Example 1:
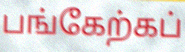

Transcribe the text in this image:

பங்கேற்கப்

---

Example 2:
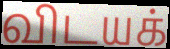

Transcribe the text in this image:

விடயக்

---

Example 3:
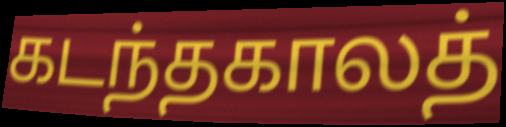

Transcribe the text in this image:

கடந்தகாலத்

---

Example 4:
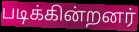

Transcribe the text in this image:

படிக்கின்றனர்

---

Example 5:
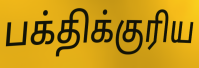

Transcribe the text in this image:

பக்திக்குரிய